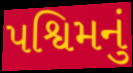
પશ્વિમનું